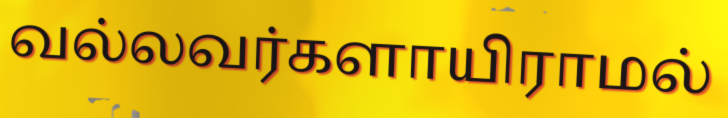
வல்லவர்களாயிராமல்